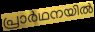
പ്രാർഥനയിൽ